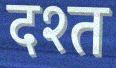
दश्त